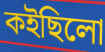
কইছিলো